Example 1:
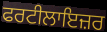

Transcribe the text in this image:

ਫਰਟੀਲਾਇਜ਼ਰ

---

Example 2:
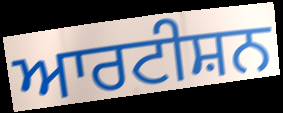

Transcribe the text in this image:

ਆਰਟੀਸ਼ਨ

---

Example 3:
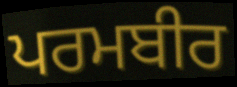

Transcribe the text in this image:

ਪਰਮਬੀਰ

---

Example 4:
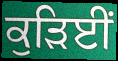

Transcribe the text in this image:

ਕੁੜਿਈਂ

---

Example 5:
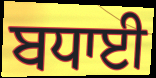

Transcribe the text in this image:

ਬਧਾਈ